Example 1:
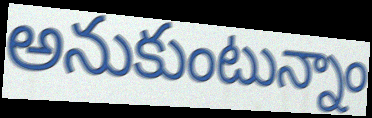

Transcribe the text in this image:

అనుకుంటున్నాం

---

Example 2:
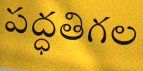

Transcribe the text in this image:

పద్ధతిగల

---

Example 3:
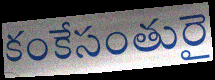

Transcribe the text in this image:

కంకేసంతురై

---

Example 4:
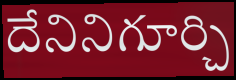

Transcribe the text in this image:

దేనినిగూర్చి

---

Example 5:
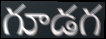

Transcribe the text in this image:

గూడగ